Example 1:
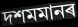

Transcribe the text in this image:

দশমমানৰ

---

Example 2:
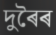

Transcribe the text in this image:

দুৰৈৰ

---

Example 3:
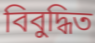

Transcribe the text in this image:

বিবুদ্ধিত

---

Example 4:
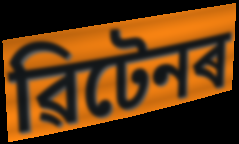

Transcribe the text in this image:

ৱিটেনৰ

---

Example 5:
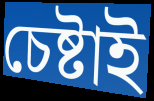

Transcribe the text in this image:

চেষ্টাই